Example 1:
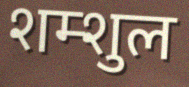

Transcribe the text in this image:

शम्शुल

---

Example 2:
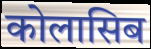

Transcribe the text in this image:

कोलासिब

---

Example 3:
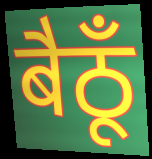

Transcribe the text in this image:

बैठूँ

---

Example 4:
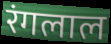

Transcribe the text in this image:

रंगलाल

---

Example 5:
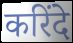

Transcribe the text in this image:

करिंदे